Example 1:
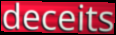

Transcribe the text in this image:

deceits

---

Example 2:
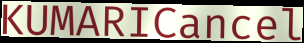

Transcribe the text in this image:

KUMARICancel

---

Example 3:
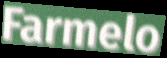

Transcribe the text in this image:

Farmelo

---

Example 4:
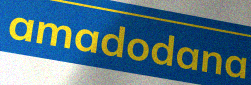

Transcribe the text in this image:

amadodana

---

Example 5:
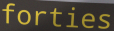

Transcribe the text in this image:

forties